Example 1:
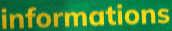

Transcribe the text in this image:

informations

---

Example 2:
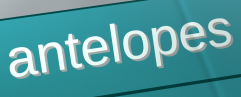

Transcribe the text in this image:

antelopes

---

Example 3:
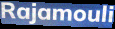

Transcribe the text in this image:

Rajamouli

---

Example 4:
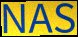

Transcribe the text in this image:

NAS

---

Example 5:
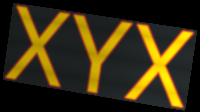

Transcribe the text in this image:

XYX